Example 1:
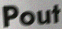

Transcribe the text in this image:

Pout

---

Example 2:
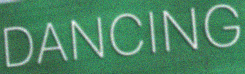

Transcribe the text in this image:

DANCING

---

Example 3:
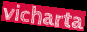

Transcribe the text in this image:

vicharta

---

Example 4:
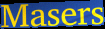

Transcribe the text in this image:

Masers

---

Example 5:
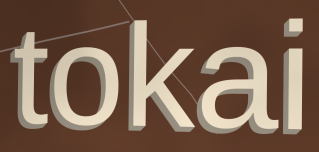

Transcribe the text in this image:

tokai